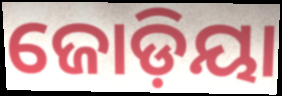
ଜୋଡ଼ିୟା